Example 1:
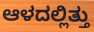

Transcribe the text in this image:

ಆಳದಲ್ಲಿತ್ತು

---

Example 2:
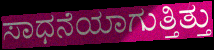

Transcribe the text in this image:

ಸಾಧನೆಯಾಗುತ್ತಿತ್ತು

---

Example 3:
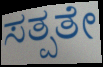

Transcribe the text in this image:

ಸತ್ಪತೇ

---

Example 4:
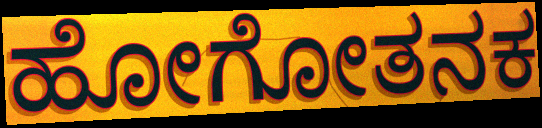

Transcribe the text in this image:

ಹೋಗೋತನಕ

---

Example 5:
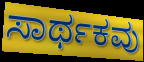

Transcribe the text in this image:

ಸಾರ್ಥಕವು